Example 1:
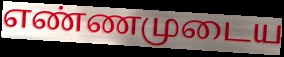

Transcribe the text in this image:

எண்ணமுடைய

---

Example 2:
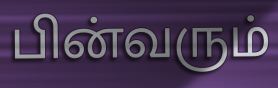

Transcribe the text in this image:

பின்வரும்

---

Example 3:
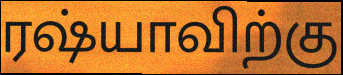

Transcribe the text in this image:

ரஷ்யாவிற்கு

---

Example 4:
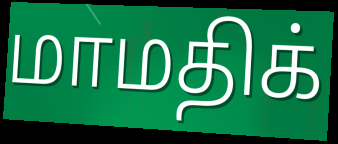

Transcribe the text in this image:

மாமதிக்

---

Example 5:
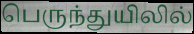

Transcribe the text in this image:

பெருந்துயிலில்